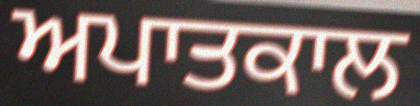
ਅਪਾਤਕਾਲ